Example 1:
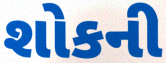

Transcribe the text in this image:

શોકની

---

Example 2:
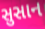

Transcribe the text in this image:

સુસાન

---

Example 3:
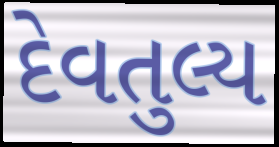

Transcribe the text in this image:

દેવતુલ્ય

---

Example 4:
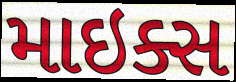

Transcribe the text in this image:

માઇક્સ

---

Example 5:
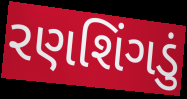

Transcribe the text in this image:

રણશિંગડું